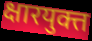
क्षारयुक्त